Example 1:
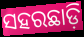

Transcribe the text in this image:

ସହରଛାଡ଼ି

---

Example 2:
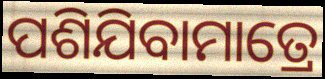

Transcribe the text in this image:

ପଶିଯିବାମାତ୍ରେ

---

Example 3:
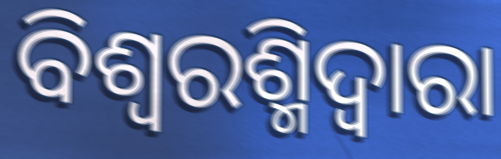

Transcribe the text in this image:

ବିଶ୍ୱରଶ୍ମିଦ୍ୱାରା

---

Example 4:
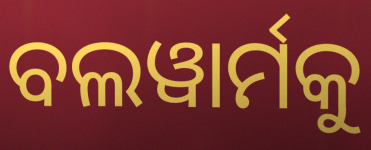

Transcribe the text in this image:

ବଲୱାର୍ମକୁ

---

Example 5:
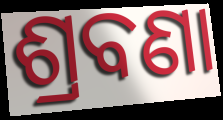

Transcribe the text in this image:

ଶ୍ରବଣା